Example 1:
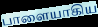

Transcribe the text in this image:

பாளையாகிய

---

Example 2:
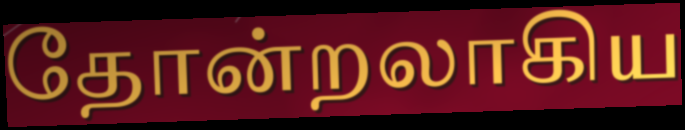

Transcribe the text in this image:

தோன்றலாகிய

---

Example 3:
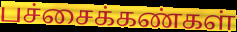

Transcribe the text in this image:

பச்சைக்கண்கள்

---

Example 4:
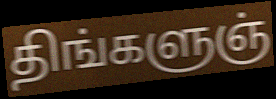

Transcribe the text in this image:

திங்களுஞ்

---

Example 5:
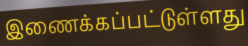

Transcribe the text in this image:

இணைக்கப்பட்டுள்ளது